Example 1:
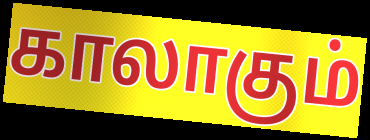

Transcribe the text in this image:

காலாகும்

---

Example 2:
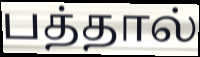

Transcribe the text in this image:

பத்தால்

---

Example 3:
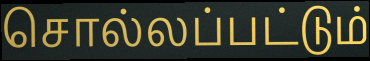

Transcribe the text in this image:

சொல்லப்பட்டும்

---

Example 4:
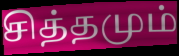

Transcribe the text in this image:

சித்தமும்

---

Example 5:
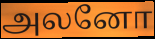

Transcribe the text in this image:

அலனோ